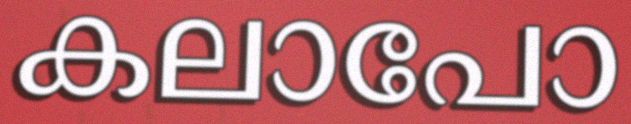
കലാപോ